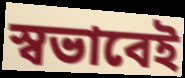
স্বভাবেই